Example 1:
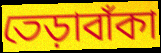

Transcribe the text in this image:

তেড়াবাঁকা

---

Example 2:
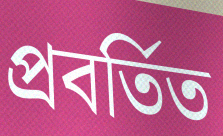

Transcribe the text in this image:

প্রবর্তিত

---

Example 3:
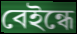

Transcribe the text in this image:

বেইন্ধে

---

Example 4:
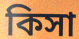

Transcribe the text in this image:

কিসা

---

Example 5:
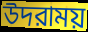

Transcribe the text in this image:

উদরাময়